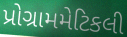
પ્રોગ્રામમેટિકલી